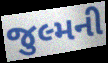
જુલ્મની